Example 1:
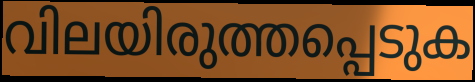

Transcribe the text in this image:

വിലയിരുത്തപ്പെടുക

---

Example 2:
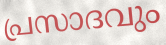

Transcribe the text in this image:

പ്രസാദവും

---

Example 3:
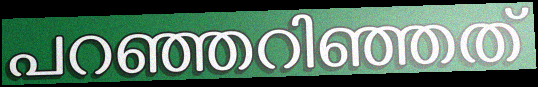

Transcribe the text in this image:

പറഞ്ഞറിഞ്ഞത്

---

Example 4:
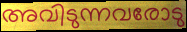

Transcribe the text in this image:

അവിടുന്നവരോടു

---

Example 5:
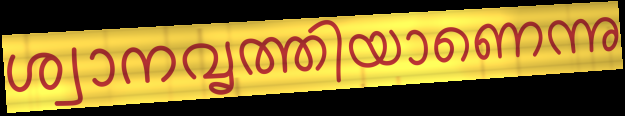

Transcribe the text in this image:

ശ്വാനവൃത്തിയാണെന്നു